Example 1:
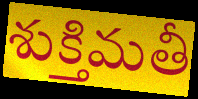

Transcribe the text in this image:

శుక్తిమతీ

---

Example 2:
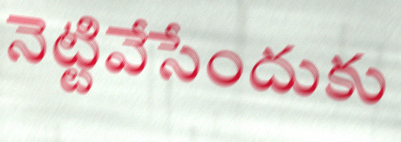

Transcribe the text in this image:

నెట్టివేసేందుకు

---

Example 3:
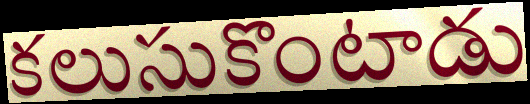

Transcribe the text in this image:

కలుసుకొంటాడు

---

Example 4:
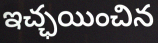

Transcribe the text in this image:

ఇచ్ఛయించిన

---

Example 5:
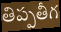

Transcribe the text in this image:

తిప్పతీగ